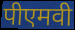
पीएमवी